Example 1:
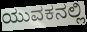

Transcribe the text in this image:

ಯುವಕನಲ್ಲಿ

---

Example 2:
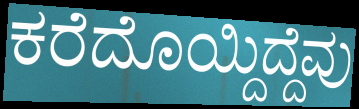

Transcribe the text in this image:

ಕರೆದೊಯ್ದಿದ್ದೆವು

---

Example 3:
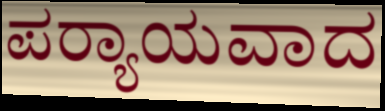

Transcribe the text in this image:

ಪರ‍್ಯಾಯವಾದ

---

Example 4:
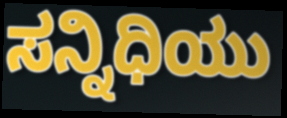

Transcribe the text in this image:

ಸನ್ನಿಧಿಯು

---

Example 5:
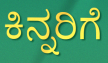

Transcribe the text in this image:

ಕಿನ್ನರಿಗೆ